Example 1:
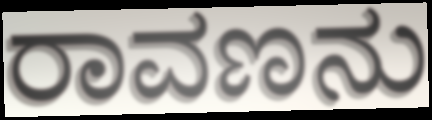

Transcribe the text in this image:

ರಾವಣನು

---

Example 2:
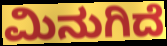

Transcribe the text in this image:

ಮಿನುಗಿದೆ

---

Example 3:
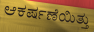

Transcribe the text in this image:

ಆಕರ್ಷಣೆಯಿತ್ತು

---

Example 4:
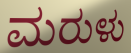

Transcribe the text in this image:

ಮರುಳು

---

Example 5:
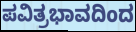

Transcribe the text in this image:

ಪವಿತ್ರಭಾವದಿಂದ